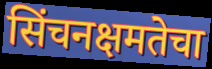
सिंचनक्षमतेचा